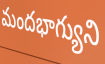
మందభాగ్యుని